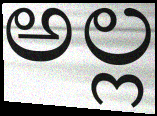
అల్ల